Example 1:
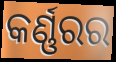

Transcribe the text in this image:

କର୍ଣ୍ଣରର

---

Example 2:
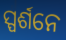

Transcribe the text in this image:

ସ୍ପର୍ଶନେ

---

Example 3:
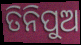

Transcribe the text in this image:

ତିନିପୁଅ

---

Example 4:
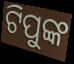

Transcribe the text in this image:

ଟିପୁଙ୍କ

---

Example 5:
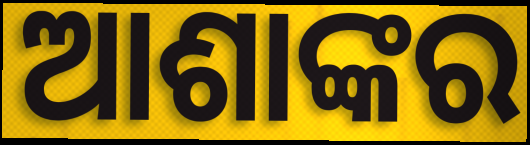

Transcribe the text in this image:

ଆଶାଙ୍କର